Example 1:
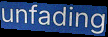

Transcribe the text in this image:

unfading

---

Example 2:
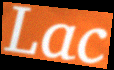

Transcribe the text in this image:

Lac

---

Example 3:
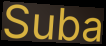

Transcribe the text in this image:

Suba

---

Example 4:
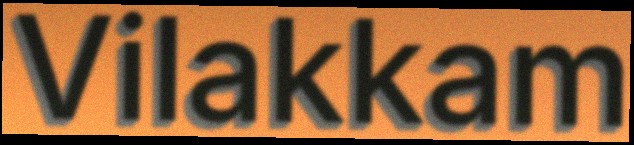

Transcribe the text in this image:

Vilakkam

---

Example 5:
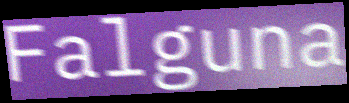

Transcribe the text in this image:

Falguna